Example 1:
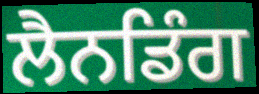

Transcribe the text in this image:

ਲੈਨਡਿੰਗ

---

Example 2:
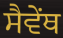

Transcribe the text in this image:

ਸੈਵੇਂਥ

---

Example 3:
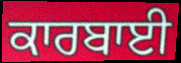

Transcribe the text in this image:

ਕਾਰਬਾਈ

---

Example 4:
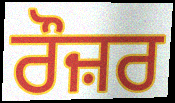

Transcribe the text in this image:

ਰੌਜ਼ਰ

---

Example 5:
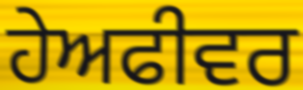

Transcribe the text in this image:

ਹੇਅਫੀਵਰ